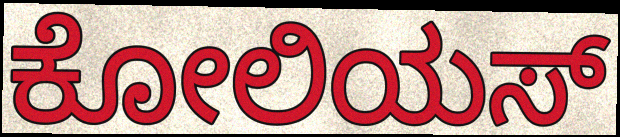
ಕೋಲಿಯಸ್